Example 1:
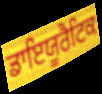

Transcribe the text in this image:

ਡਾਇਯੂਰੈਟਿਕ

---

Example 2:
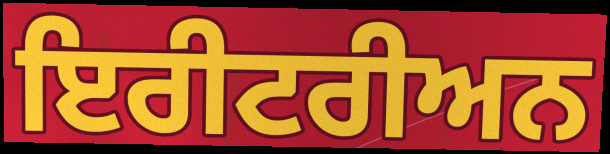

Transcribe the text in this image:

ਇਰੀਟਰੀਅਨ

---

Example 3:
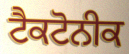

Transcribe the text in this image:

ਟੈਕਟੋਨੀਕ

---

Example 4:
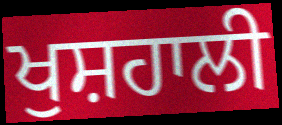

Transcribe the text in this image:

ਖੁਸ਼ਹਾਲੀ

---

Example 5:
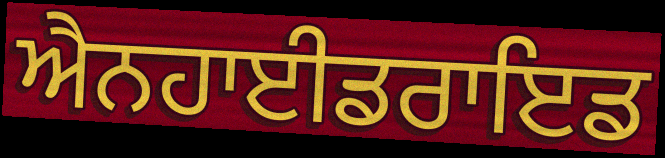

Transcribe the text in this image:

ਐਨਹਾਈਡਰਾਇਡ